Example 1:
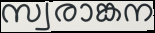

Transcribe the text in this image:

സ്വരാങ്കന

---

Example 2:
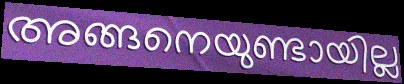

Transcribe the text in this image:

അങ്ങനെയുണ്ടായില്ല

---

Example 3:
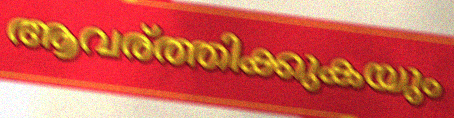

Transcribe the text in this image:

ആവര്ത്തിക്കുകയും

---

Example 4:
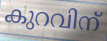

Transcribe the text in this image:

കുറവിന്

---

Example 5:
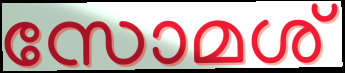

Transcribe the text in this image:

സോമശ്